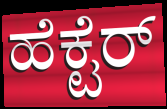
ಹೆಕ್ಟೆರ್